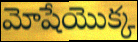
మోషేయొక్క